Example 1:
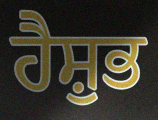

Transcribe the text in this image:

ਹੈਸ਼ੁਭ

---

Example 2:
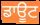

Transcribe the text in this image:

ਡਾਊਟ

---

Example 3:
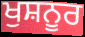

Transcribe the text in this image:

ਖੁਸ਼ਨੂਰ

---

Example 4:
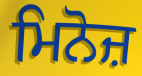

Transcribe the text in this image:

ਮਿਨੋਜ਼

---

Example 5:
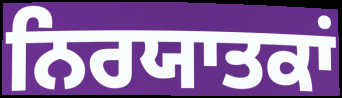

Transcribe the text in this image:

ਨਿਰਯਾਤਕਾਂ